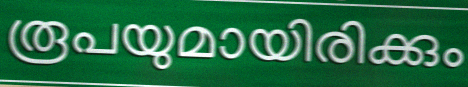
രൂപയുമായിരിക്കും